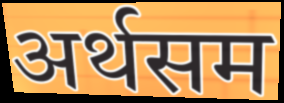
अर्थसम